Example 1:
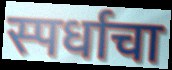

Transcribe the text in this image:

स्पर्धाचा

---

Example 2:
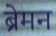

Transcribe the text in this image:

ब्रेमन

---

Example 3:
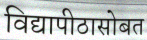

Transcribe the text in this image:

विद्यापीठासोबत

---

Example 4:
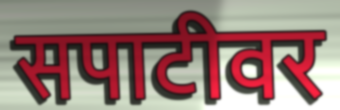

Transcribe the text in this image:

सपाटीवर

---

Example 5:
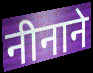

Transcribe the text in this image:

नीनाने